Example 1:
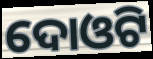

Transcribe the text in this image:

ଦୋଓଟି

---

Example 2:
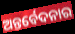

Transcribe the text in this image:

ଅନ୍ତର୍ବେଦନାର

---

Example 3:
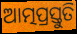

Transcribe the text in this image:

ଆତ୍ମପ୍ରସ୍ତୁତି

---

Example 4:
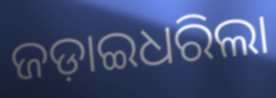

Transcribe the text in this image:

ଜଡ଼ାଇଧରିଲା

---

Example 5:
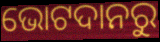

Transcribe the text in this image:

ଭୋଟଦାନରୁ